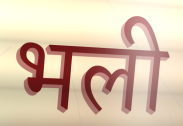
भली